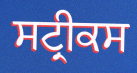
ਸਟ੍ਰੀਕਸ